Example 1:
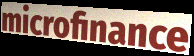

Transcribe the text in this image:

microfinance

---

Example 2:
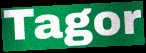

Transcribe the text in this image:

Tagor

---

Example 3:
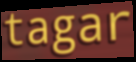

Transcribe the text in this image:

tagar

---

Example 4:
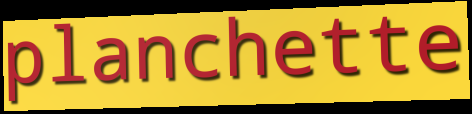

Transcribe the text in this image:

planchette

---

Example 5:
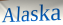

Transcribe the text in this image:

Alaska